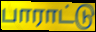
பாராட்டு